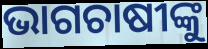
ଭାଗଚାଷୀଙ୍କୁ